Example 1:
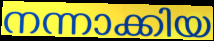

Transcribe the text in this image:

നന്നാക്കിയ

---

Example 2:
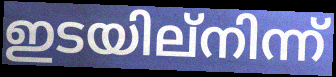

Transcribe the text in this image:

ഇടയില്നിന്ന്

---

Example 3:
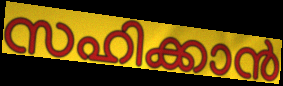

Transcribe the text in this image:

സഹിക്കാൻ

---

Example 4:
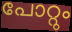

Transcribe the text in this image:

പോറ്റും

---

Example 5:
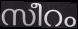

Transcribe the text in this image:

സീറം